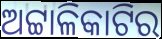
ଅଟ୍ଟାଳିକାଟିର